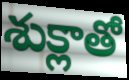
శుక్లాతో